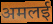
अमलई